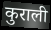
कुराली